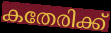
കതേരിക്ക്